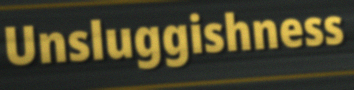
Unsluggishness